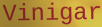
Vinigar